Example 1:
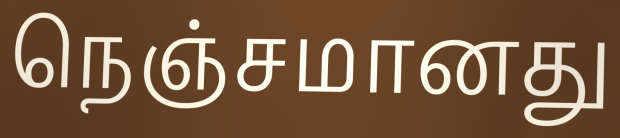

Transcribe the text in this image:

நெஞ்சமானது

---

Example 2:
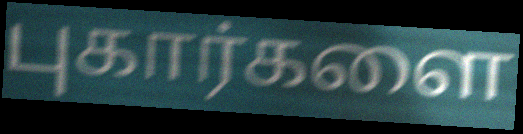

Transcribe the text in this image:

புகார்களை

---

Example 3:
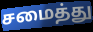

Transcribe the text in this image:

சமைத்து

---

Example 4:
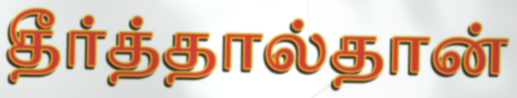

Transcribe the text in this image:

தீர்த்தால்தான்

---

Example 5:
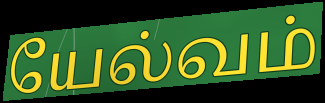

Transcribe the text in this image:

யேல்வம்